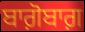
ਬਾਗ਼ੋਬਾਗ਼